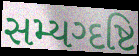
સમ્યગ્દષ્ટિ